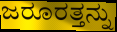
ಜರೂರತ್ತನ್ನು